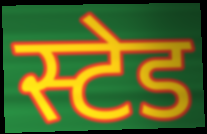
स्टेड